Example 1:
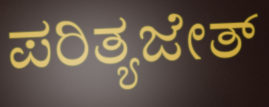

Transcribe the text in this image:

ಪರಿತ್ಯಜೇತ್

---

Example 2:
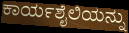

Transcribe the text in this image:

ಕಾರ್ಯಶೈಲಿಯನ್ನು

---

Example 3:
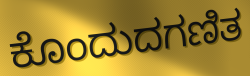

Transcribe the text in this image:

ಕೊಂದುದಗಣಿತ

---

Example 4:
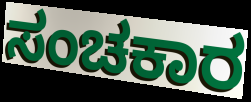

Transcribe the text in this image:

ಸಂಚಕಾರ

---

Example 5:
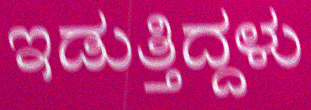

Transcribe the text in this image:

ಇಡುತ್ತಿದ್ದಳು